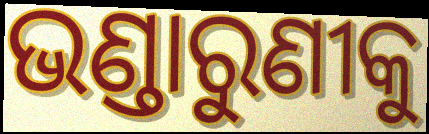
ଭଣ୍ଡାରୁଣୀକୁ